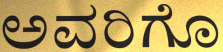
ಅವರಿಗೊ